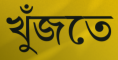
খুঁজতে